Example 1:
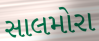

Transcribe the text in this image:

સાલમોરા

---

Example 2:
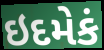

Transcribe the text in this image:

ઇદમેકં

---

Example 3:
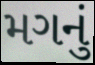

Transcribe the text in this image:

મગનું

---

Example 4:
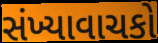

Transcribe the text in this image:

સંખ્યાવાચકો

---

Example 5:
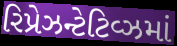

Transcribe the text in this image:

રિપ્રેઝન્ટેટિવ્ઝમાં